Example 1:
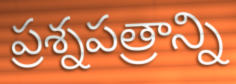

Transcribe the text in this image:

ప్రశ్నపత్రాన్ని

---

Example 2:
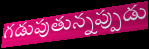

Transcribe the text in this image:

గడుపుతున్నప్పుడు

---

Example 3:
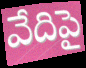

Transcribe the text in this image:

వేదిపై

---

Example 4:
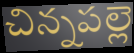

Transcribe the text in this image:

చిన్నపల్లె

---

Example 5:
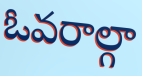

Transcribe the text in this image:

ఓవరాల్గా